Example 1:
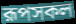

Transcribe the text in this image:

রূপসকল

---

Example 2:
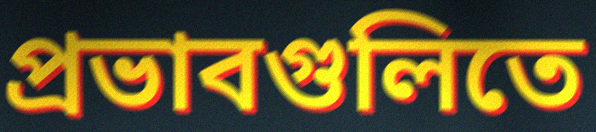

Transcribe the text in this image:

প্রভাবগুলিতে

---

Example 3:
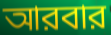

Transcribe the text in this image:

আরবার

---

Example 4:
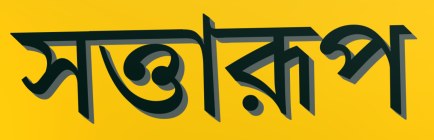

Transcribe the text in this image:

সত্তারূপ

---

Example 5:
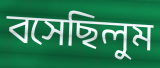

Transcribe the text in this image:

বসেছিলুম